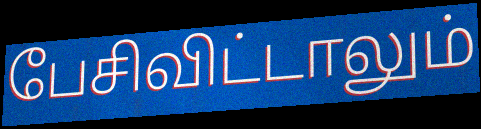
பேசிவிட்டாலும்